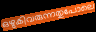
ഒഴുകിവരുന്നതുപോലെ